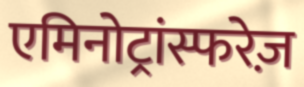
एमिनोट्रांस्फरेज़